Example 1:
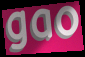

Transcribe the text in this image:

gao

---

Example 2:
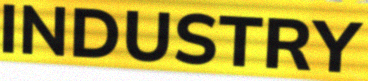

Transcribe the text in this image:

INDUSTRY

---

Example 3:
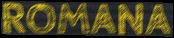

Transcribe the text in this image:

ROMANA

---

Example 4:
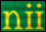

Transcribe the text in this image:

nii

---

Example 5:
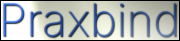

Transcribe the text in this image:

Praxbind